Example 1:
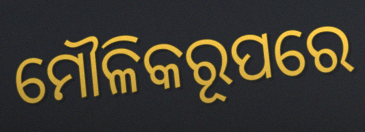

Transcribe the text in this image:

ମୌଳିକରୂପରେ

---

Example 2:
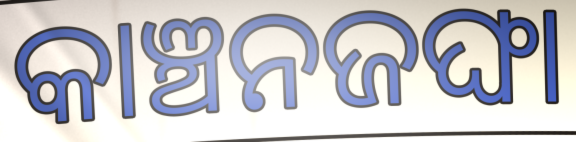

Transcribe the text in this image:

କାଞ୍ଚନଜଙ୍ଘା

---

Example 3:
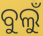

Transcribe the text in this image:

ବୁଲୁଁ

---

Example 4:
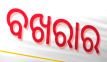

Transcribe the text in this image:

ବଖରାର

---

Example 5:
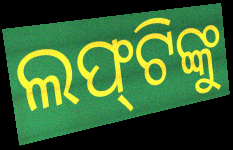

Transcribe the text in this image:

ଲଫ୍‌ଟିଙ୍କୁ